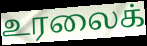
உரலைக்